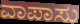
ವಾಪಾಸು